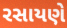
રસાયણે